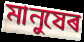
মানুষেৰ